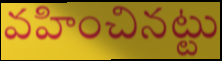
వహించినట్టు